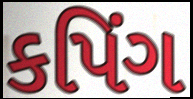
કપિંગ